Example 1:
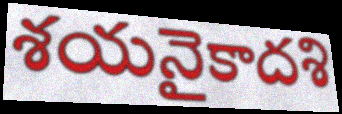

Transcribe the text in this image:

శయనైకాదశి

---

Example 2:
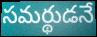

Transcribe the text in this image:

సమర్థుడనే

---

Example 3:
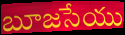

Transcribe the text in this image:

బూజసేయు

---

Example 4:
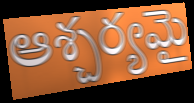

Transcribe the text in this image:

ఆశ్చర్యమై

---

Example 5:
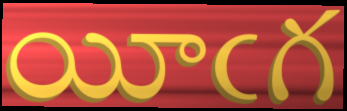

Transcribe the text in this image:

యీఁగ